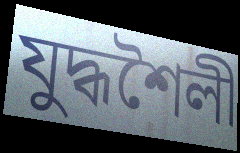
যুদ্ধশৈলী